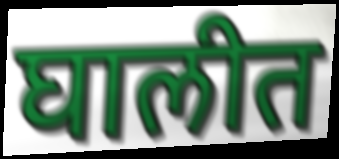
घालीत